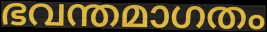
ഭവന്തമാഗതം